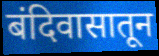
बंदिवासातून